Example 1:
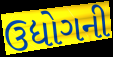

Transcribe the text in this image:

ઉદ્યોગની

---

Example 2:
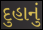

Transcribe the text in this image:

દુહાનું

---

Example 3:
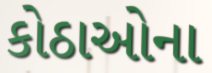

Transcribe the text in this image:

કોઠાઓના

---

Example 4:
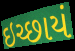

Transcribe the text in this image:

ઇચ્છાયં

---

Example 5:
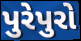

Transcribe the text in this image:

પુરેપુરો